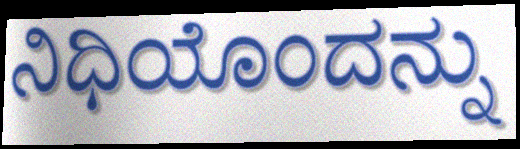
ನಿಧಿಯೊಂದನ್ನು